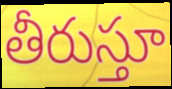
తీరుస్తూ